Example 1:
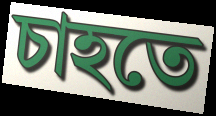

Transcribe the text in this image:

চাহতে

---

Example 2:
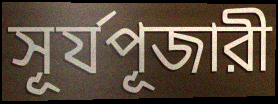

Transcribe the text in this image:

সূর্যপূজারী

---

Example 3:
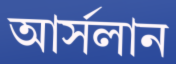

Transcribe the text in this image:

আর্সলান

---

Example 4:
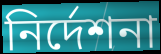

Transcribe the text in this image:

নির্দেশনা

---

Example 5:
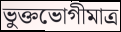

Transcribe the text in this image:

ভুক্তভোগীমাত্র